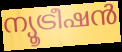
ന്യൂട്രീഷൻ